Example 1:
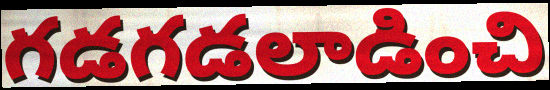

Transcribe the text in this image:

గడగడలాడించి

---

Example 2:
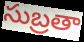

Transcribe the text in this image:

సుబ్రతా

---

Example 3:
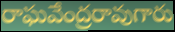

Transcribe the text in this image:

రాఘవేంద్రరావుగారు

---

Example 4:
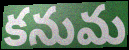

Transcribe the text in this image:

కనుమ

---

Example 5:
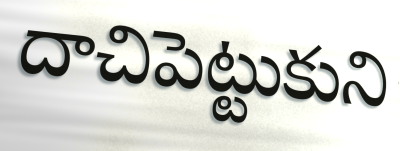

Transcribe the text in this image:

దాచిపెట్టుకుని